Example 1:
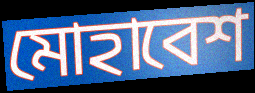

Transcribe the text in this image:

মোহাবেশ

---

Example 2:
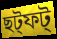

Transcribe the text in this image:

ছট্ফট্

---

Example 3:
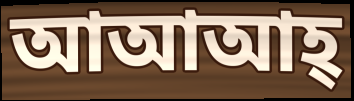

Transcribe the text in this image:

আআআহ্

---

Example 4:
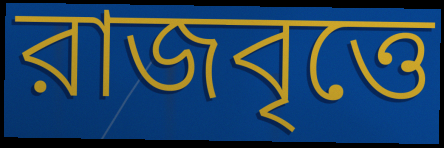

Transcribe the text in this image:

রাজবৃত্তে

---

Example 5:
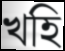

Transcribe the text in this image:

খহি